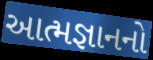
આત્મજ્ઞાનનો